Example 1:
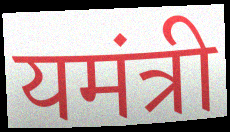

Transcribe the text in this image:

यमंत्री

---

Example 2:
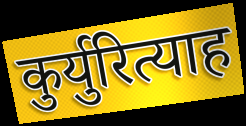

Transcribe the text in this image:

कुर्युरित्याह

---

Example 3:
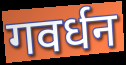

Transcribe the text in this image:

गवर्धन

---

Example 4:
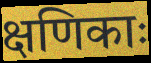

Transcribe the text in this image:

क्षणिकाः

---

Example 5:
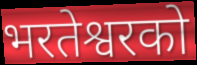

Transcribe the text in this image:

भरतेश्वरको